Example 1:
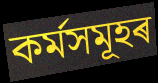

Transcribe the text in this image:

কৰ্মসমূহৰ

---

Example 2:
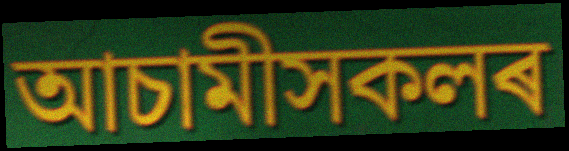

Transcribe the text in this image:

আচামীসকলৰ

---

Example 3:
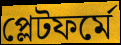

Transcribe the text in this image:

প্লেটফৰ্মে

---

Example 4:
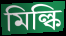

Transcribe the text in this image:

মিল্কি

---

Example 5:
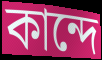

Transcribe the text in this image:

কান্দে